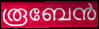
രൂബേൻ